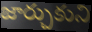
జార్చుకుని